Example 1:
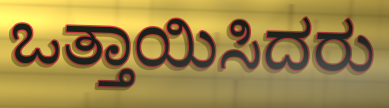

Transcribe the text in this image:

ಒತ್ತಾಯಿಸಿದರು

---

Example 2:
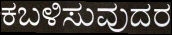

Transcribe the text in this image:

ಕಬಳಿಸುವುದರ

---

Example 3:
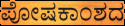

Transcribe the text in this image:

ಪೋಷಕಾಂಶದ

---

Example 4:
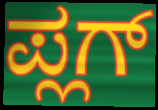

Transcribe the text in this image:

ಪ್ಲಗ್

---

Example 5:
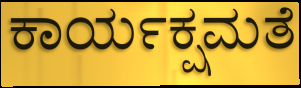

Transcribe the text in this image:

ಕಾರ್ಯಕ್ಷಮತೆ